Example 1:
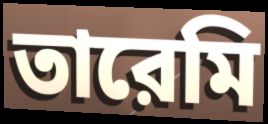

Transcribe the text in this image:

তারেমি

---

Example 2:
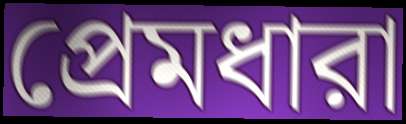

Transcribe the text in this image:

প্রেমধারা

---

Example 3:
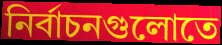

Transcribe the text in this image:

নির্বাচনগুলোতে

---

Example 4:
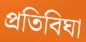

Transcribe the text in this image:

প্রতিবিঘা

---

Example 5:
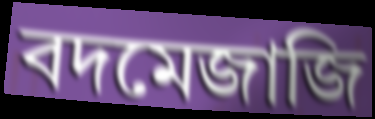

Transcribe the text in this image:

বদমেজাজি